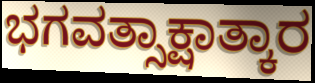
ಭಗವತ್ಸಾಕ್ಷಾತ್ಕಾರ